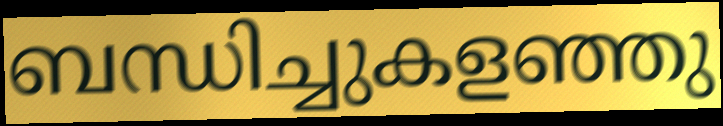
ബന്ധിച്ചുകളഞ്ഞു